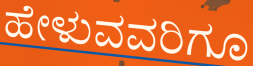
ಹೇಳುವವರಿಗೂ